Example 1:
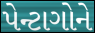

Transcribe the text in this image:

પેન્ટાગોને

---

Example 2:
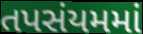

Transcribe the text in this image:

તપસંયમમાં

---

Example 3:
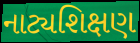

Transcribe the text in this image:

નાટ્યશિક્ષણ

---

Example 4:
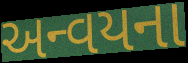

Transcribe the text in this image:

અન્વયના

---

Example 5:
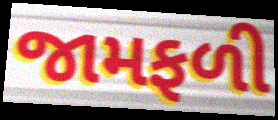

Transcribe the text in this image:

જામફળી